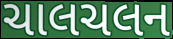
ચાલચલન